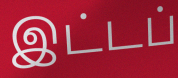
இட்டப்